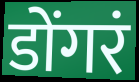
डोंगरं